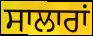
ਸਾਲਾਰਾਂ